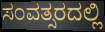
ಸಂವತ್ಸರದಲ್ಲಿ